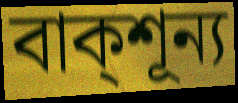
বাক্শূন্য